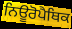
ਨਿਊਰੋਪੈਥਿਕ